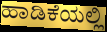
ಹಾಡಿಕೆಯಲ್ಲಿ